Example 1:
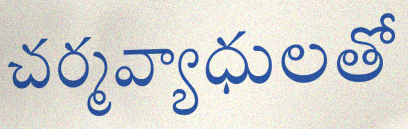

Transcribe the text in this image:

చర్మవ్యాధులతో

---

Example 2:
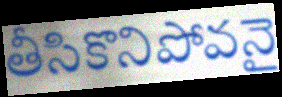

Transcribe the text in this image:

తీసికొనిపోవనై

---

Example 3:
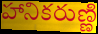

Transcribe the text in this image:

హానికరుణ్ణి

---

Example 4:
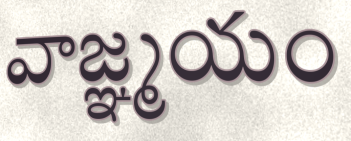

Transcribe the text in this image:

వాజ్ఞ్మయం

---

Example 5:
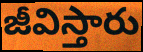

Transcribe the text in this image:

జీవిస్తారు